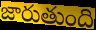
జారుతుంది